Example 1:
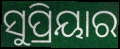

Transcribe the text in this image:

ସୁପ୍ରିୟାର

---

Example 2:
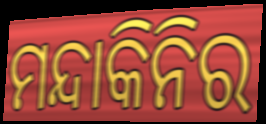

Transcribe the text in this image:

ମନ୍ଦାକିନିର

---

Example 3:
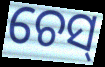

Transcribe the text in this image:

ଚେସ୍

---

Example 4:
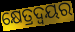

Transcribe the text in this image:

କ୍ଷେତ୍ରଦ୍ୱୟର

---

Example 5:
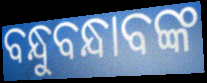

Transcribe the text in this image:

ବନ୍ଧୁବନ୍ଧାବଙ୍କ